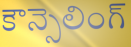
కౌన్సెలింగ్